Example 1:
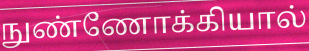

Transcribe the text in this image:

நுண்ணோக்கியால்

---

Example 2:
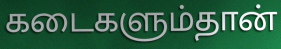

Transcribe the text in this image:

கடைகளும்தான்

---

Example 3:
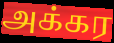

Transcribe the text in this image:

அக்கர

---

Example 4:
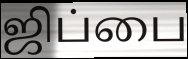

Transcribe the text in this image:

ஜிப்பை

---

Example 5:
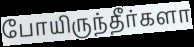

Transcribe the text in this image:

போயிருந்தீர்களா